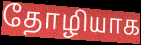
தோழியாக